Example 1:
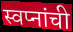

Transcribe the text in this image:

स्वप्नांची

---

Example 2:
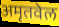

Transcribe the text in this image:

अमृतवेल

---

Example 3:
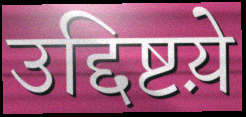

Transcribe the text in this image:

उद्दिष्टय़े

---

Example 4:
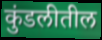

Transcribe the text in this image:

कुंडलीतील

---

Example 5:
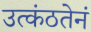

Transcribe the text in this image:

उत्कंठतेनं